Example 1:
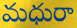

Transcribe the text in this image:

మధురా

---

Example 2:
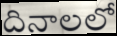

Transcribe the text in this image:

దినాలలో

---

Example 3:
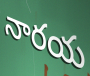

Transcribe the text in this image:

నారయ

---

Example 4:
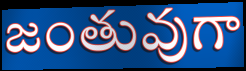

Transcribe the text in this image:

జంతువుగా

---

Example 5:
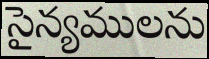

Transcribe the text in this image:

సైన్యములను